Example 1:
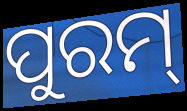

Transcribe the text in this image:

ପୁରମ୍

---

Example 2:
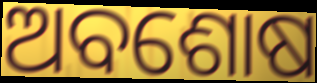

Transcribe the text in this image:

ଅବଶୋଷ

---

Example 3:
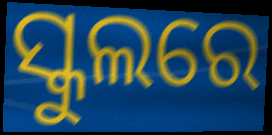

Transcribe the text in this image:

ସ୍କୁଲରେ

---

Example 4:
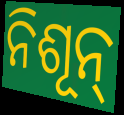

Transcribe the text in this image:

ନିଶୂନ୍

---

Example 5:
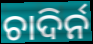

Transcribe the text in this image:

ଚାଦିର୍ନ